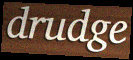
drudge